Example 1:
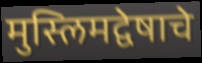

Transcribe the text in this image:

मुस्लिमद्वेषाचे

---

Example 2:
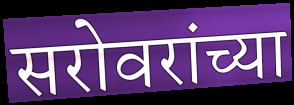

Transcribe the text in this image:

सरोवरांच्या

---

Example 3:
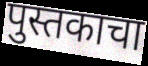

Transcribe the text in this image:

पुस्तकाचा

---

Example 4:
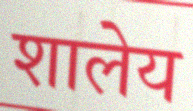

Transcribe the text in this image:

शालेय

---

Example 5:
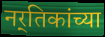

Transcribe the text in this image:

नर्तिकांच्या